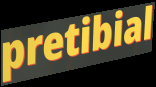
pretibial